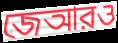
জেআরও